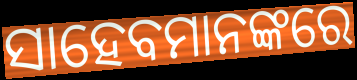
ସାହେବମାନଙ୍କରେ